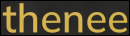
thenee